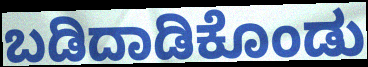
ಬಡಿದಾಡಿಕೊಂಡು